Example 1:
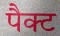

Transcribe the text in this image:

पैक्ट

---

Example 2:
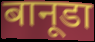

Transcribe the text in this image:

बानूडा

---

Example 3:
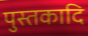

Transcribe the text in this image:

पुस्तकादि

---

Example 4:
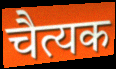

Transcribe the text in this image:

चैत्यक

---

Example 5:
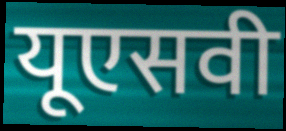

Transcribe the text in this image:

यूएसवी